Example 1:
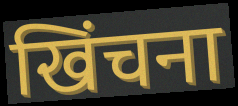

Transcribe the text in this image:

खिंचना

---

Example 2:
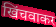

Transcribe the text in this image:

खिंचवाकर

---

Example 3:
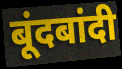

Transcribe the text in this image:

बूंदबांदी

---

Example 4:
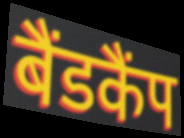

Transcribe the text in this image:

बैंडकैंप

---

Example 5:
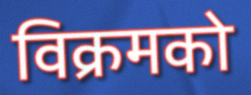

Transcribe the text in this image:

विक्रमको